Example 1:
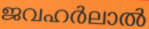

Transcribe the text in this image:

ജവഹർലാൽ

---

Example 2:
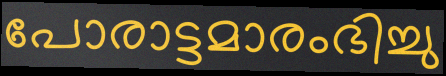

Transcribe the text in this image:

പോരാട്ടമാരംഭിച്ചു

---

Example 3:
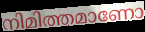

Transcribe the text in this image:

നിമിത്തമാണോ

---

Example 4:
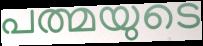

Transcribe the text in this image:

പത്മയുടെ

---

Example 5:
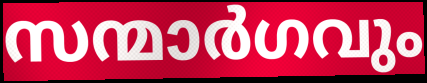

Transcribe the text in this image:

സന്മാർഗവും